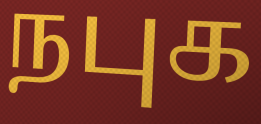
நபுக